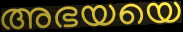
അഭയയെ